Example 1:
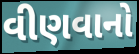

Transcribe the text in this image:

વીણવાનો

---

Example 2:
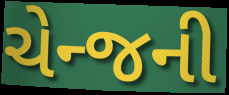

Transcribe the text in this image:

ચેન્જની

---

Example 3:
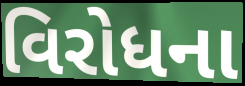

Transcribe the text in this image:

વિરોધના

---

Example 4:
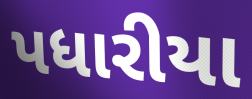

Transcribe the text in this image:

પધારીયા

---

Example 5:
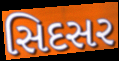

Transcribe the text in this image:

સિદસર